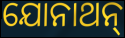
ଯୋନାଥନ୍